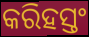
କରିହସ୍ତଂ